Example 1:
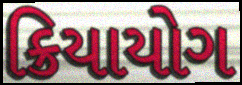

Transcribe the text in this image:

ક્રિયાયોગ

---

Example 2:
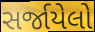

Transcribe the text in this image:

સર્જાયેલો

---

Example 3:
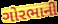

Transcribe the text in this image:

ગોરભાની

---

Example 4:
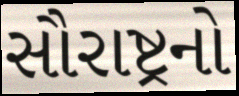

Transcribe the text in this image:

સૌરાષ્ટ્રનો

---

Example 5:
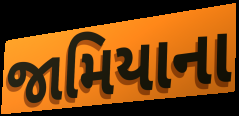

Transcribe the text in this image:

જામિયાના